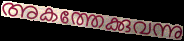
അകത്തേക്കുവന്നു